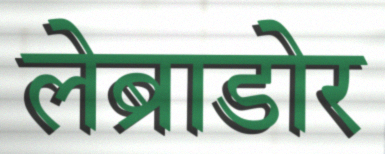
लेब्राडोर